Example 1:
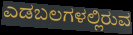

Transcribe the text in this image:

ಎಡಬಲಗಳಲ್ಲಿರುವ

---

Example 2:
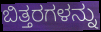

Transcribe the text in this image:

ಬಿತ್ತರಗಳನ್ನು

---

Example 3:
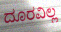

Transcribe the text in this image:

ದೂರವಿಲ್ಲ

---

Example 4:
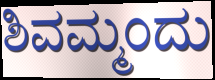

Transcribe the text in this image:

ಶಿವಮ್ಮಂದು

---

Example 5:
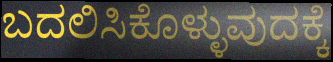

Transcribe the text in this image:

ಬದಲಿಸಿಕೊಳ್ಳುವುದಕ್ಕೆ